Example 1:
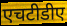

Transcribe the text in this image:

एचटीडीए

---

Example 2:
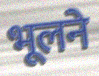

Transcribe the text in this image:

भूलने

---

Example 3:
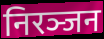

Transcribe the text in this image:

निरञ्जन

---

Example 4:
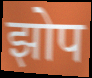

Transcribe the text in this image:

झोप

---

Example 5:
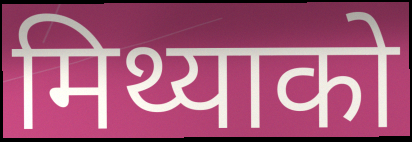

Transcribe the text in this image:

मिथ्याको